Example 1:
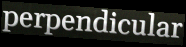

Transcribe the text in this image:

perpendicular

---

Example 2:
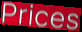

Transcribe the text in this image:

Prices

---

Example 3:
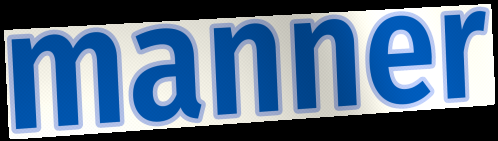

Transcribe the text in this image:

manner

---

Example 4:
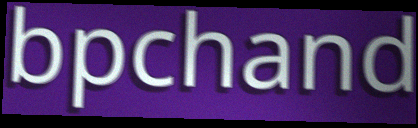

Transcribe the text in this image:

bpchand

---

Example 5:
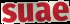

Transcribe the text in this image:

suae